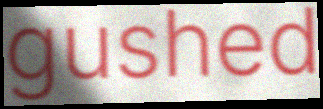
gushed